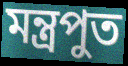
মন্ত্রপুত